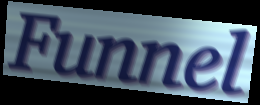
Funnel